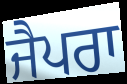
ਜੈਪਰਾ